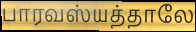
பாரவஸ்யத்தாலே